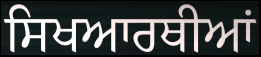
ਸਿਖਆਰਥੀਆਂ